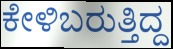
ಕೇಳಿಬರುತ್ತಿದ್ದ